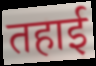
तहाई